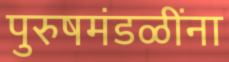
पुरुषमंडळींना